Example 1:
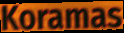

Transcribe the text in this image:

Koramas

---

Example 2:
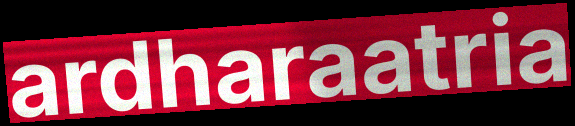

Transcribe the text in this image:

ardharaatria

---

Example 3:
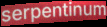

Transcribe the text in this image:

serpentinum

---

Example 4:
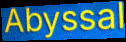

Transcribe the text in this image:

Abyssal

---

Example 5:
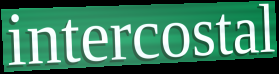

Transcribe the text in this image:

intercostal